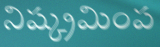
నిష్క్రమింప